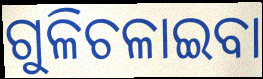
ଗୁଳିଚଳାଇବା